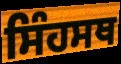
ਸਿੰਹਸਥ